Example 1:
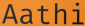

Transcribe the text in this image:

Aathi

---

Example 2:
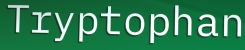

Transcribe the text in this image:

Tryptophan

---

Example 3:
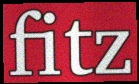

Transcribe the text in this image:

fitz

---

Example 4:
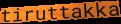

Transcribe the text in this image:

tiruttakka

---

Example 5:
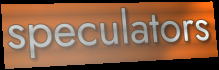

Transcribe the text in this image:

speculators